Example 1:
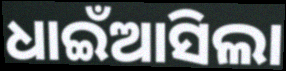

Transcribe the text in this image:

ଧାଇଁଆସିଲା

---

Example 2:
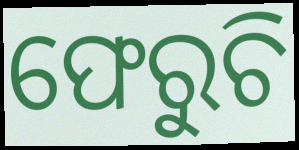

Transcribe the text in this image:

ଫେରୁଚି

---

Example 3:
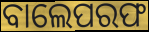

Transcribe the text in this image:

ବାଲେପରଫ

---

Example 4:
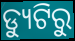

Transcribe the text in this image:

ଡ୍ୟୁଟିରୁ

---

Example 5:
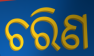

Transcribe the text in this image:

ଚରିଣ